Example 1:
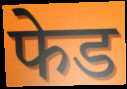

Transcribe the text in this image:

फेड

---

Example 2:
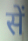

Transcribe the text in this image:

सें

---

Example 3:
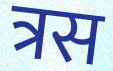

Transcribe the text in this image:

त्रस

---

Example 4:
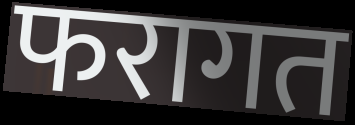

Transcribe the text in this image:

फरागत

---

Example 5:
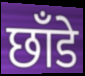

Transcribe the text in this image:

छाँडे